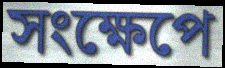
সংক্ষেপে